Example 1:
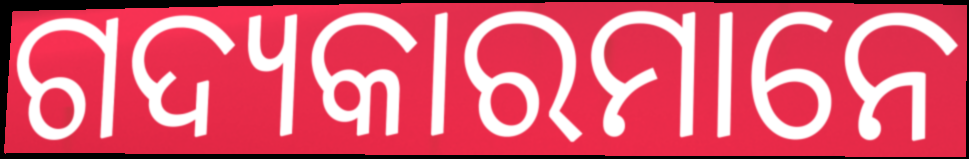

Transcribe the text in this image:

ଗଦ୍ୟକାରମାନେ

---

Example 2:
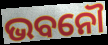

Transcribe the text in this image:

ଭବନୌ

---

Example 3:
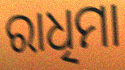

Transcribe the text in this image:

ରାଧିମା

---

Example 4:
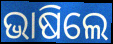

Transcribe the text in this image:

ଭାଷିଲେ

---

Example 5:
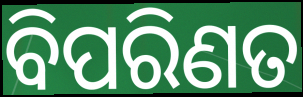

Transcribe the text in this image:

ବିପରିଣତ